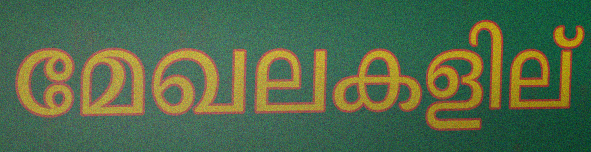
മേഖലകളില്